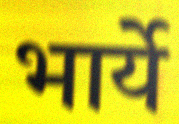
भार्ये